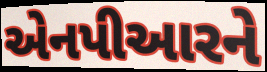
એનપીઆરને